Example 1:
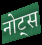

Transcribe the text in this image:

नोट्‌स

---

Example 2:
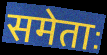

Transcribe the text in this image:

समेताः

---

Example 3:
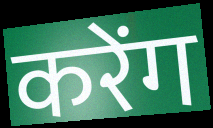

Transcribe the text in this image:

करेंग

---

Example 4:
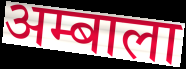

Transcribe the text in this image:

अम्‍बाला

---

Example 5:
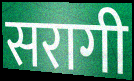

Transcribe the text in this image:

सरागी